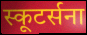
स्कूटर्सना